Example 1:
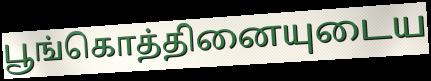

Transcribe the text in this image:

பூங்கொத்தினையுடைய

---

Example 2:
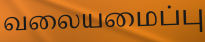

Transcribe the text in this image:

வலையமைப்பு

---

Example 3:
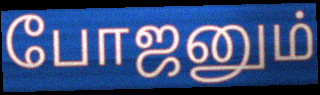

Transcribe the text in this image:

போஜனும்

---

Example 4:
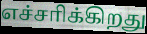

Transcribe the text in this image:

எச்சரிக்கிறது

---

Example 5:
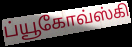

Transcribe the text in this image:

ப்யூகோவ்ஸ்கி